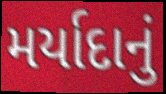
મર્યાદાનું